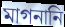
মাগনানি